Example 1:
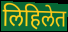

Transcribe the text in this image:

लिहिलेत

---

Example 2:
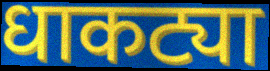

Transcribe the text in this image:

धाकट्या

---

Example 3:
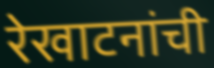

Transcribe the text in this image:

रेखाटनांची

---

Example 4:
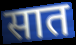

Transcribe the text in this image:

सात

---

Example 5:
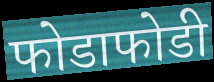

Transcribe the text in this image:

फोडाफोडी